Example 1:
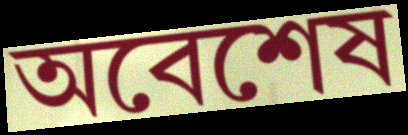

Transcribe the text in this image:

অবেশেষ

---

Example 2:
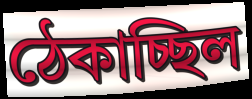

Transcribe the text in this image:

ঠেকাচ্ছিল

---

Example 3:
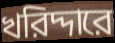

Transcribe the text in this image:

খরিদ্দারে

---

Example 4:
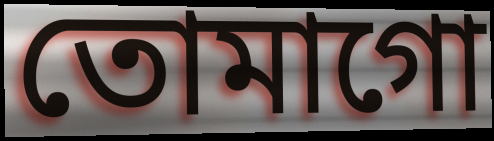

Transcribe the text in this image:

তোমাগো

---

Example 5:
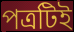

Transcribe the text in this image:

পত্রটিই